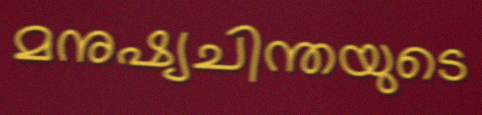
മനുഷ്യചിന്തയുടെ